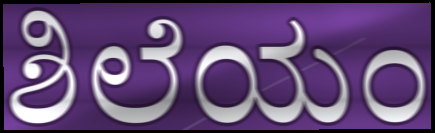
ಶಿಲೆಯಂ